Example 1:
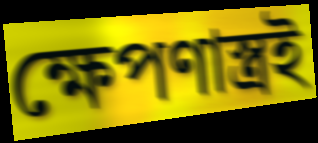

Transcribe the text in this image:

ক্ষেপণাস্ত্রই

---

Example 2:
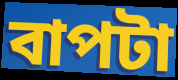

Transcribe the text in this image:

বাপটা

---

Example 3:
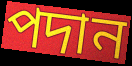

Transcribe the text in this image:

পদান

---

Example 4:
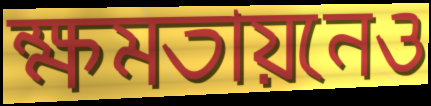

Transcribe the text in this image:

ক্ষমতায়নেও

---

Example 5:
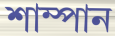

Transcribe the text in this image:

শাম্পান